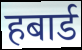
हबार्ड